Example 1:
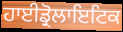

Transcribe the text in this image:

ਹਾਈਡ੍ਰੋਲਾਇਟਿਕ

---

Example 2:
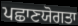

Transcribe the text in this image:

ਪਛਾਣਯੋਗਤਾ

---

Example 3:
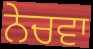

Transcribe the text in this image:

ਨੇਚਵਾ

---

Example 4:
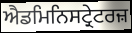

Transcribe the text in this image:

ਐਡਮਿਨਿਸਟ੍ਰੇਟਰਜ਼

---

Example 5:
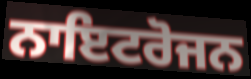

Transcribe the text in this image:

ਨਾਇਟਰੋਜਨ